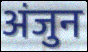
अंजुन